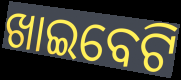
ଖାଇବେଟି